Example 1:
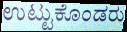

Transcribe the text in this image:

ಉಟ್ಟುಕೊಂಡರು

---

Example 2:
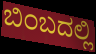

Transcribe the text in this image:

ಬಿಂಬದಲ್ಲಿ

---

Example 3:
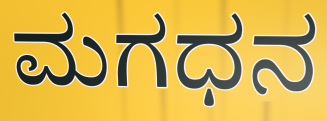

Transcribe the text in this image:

ಮಗಧನ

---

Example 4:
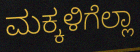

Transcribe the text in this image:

ಮಕ್ಕಳಿಗೆಲ್ಲಾ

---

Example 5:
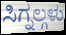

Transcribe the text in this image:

ಸಿಗ್ನಲ್ಗಳು